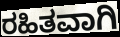
ರಹಿತವಾಗಿ